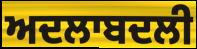
ਅਦਲਾਬਦਲੀ